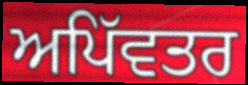
ਅਪਿੱਵਤਰ